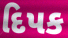
દિપક